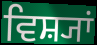
ਵਿਸ਼੍ਯਾਂ